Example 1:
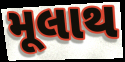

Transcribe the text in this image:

મૂલાથ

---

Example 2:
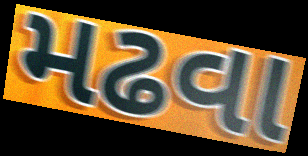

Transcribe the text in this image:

મઢવા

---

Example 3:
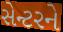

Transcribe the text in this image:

સેન્ટરને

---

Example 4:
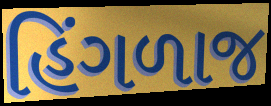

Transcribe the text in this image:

હિંગળાજ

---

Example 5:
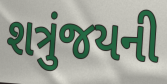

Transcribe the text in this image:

શત્રુંજયની